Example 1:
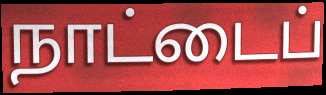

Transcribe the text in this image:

நாட்டைப்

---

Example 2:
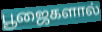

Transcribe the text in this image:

பூஜைகளால்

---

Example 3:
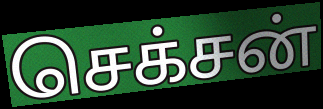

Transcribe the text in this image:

செக்சன்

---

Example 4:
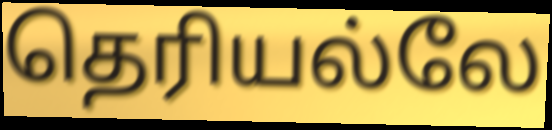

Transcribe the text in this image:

தெரியல்லே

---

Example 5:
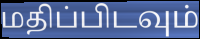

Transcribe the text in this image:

மதிப்பிடவும்